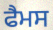
ਫੈਮਸ